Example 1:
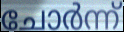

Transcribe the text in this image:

ചോർന്ന്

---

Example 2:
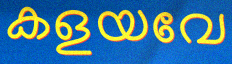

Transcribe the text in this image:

കളയവേ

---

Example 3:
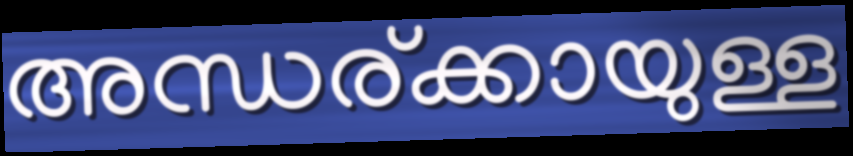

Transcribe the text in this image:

അന്ധര്ക്കായുള്ള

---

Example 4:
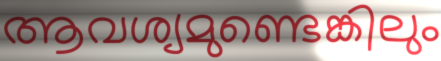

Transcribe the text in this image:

ആവശ്യമുണ്ടെങ്കിലും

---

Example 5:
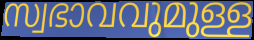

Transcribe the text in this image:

സ്വഭാവവുമുള്ള